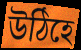
উঠিহে